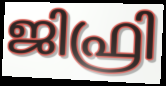
ജിഫ്രി